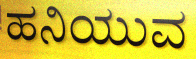
ಹನಿಯುವ